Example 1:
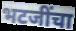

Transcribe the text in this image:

भटजींचा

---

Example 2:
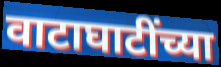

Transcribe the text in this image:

वाटाघाटींच्या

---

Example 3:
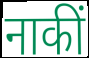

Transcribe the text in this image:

नाकीं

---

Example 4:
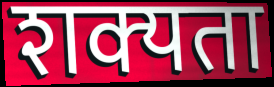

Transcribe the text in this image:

शक्यता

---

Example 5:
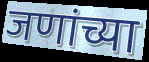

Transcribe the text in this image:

जणांच्या